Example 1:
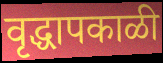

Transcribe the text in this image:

वृद्धापकाळी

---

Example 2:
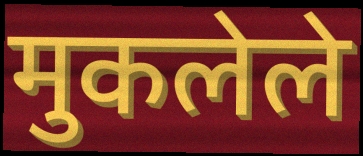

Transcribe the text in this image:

मुकलेले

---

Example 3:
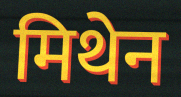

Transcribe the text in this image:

मिथेन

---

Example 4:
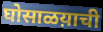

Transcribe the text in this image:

घोसाळय़ाची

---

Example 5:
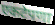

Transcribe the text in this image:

एकटेपणा